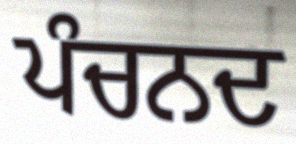
ਪੰਚਨਦ